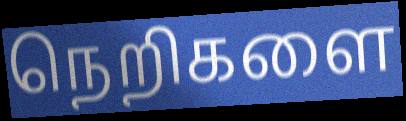
நெறிகளை